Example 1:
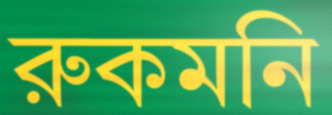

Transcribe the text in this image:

রুকমনি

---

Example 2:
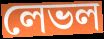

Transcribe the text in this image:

লেভল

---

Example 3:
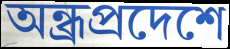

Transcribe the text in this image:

অন্ধ্রপ্রদেশে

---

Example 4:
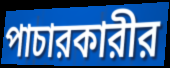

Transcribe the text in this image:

পাচারকারীর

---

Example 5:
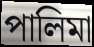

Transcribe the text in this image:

পালিমা